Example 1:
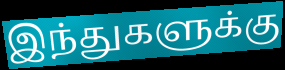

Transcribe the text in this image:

இந்துகளுக்கு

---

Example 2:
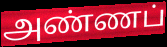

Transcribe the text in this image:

அண்ணப்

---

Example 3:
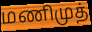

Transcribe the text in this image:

மணிமுத்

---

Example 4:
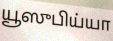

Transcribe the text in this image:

யூஸுபிய்யா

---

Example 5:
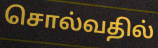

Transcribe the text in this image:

சொல்வதில்